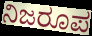
ನಿಜರೂಪ